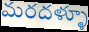
మరదళ్ళూ